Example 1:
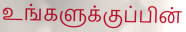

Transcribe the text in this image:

உங்களுக்குப்பின்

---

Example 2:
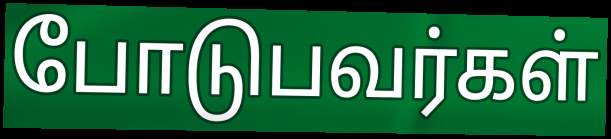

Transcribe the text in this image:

போடுபவர்கள்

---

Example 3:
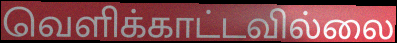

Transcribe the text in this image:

வெளிக்காட்டவில்லை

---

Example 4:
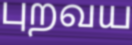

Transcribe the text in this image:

புறவய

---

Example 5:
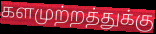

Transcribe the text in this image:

களமுற்றத்துக்கு